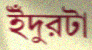
ইঁদুরটা